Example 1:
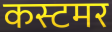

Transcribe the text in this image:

कस्‍टमर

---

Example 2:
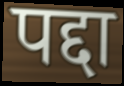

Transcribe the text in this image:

पद्दा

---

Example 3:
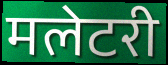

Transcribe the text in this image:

मलेटरी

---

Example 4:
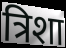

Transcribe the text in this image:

त्रिशा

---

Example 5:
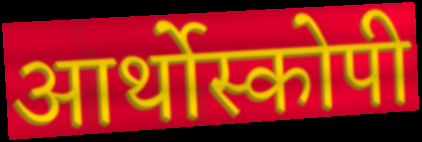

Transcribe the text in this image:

आर्थोस्कोपी